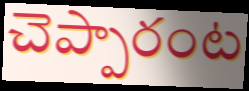
చెప్పారంట